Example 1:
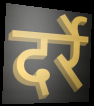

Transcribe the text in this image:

दर्रे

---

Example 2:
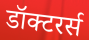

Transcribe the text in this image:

डॉक्टरर्स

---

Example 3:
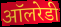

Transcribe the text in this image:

ऑलरेडी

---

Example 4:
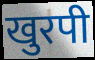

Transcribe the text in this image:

खुरपी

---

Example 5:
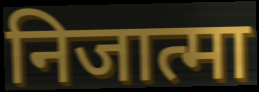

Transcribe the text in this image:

निजात्मा